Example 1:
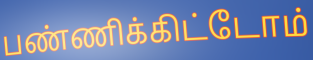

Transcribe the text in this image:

பண்ணிக்கிட்டோம்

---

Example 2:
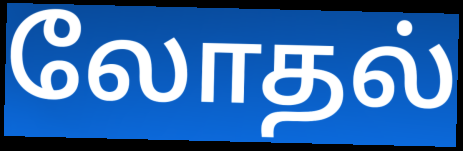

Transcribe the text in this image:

லோதல்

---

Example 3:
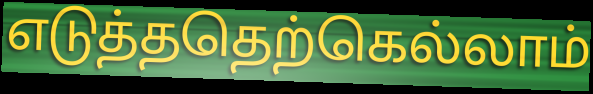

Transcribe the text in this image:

எடுத்ததெற்கெல்லாம்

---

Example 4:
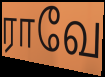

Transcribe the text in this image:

ராவே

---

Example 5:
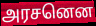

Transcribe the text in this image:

அரசனென